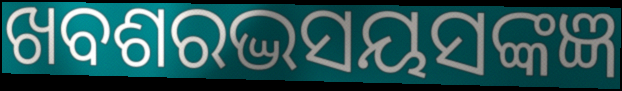
ଖବଶରଦ୍ଭସୟସଙ୍କଜ୍ଞ